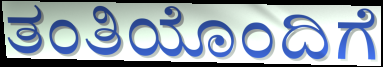
ತಂತಿಯೊಂದಿಗೆ